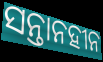
ସନ୍ତାନହୀନ